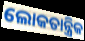
ଲୋକତାନ୍ତ୍ରିକ